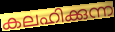
കലഹിക്കുന്ന